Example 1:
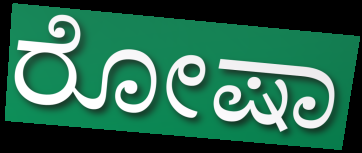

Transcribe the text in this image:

ರೋಷಾ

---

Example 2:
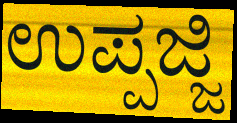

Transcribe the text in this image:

ಉಪ್ಪಜ್ಜಿ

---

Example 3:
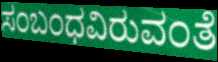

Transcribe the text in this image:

ಸಂಬಂಧವಿರುವಂತೆ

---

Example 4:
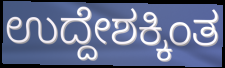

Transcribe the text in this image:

ಉದ್ದೇಶಕ್ಕಿಂತ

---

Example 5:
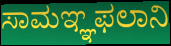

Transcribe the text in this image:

ಸಾಮಞ್ಞಫಲಾನಿ